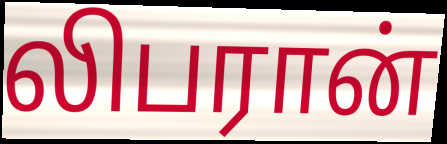
லிபரான்